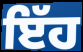
ਇੱਹ